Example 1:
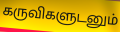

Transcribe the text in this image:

கருவிகளுடனும்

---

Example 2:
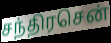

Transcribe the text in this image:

சந்திரசென்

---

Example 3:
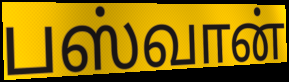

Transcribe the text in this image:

பஸ்வான்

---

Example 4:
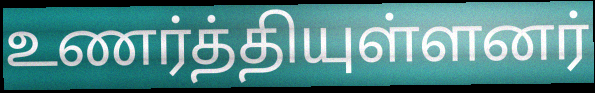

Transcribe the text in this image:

உணர்த்தியுள்ளனர்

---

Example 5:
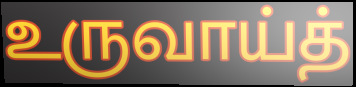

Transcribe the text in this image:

உருவாய்த்